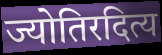
ज्योतिरदित्य